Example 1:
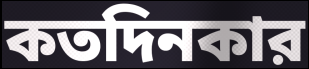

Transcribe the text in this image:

কতদিনকার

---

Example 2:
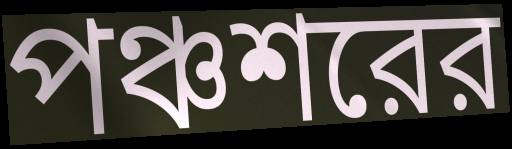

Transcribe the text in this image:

পঞ্চশরের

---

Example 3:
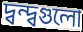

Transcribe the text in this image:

দ্বন্দ্বগুলো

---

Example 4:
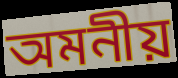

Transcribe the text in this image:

অমনীয়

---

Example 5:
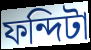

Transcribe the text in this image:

ফন্দিটা